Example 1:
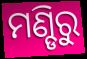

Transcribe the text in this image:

ମଣ୍ଡିରୁ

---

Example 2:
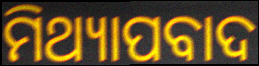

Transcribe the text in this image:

ମିଥ୍ୟାପବାଦ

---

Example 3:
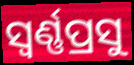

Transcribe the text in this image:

ସ୍ୱର୍ଣ୍ଣପ୍ରସୁ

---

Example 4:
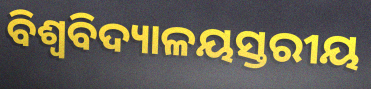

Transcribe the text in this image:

ବିଶ୍ଵବିଦ୍ୟାଳୟସ୍ତରୀୟ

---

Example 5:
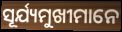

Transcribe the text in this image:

ସୂର୍ଯ୍ୟମୁଖୀମାନେ